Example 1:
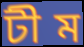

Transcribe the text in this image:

টীম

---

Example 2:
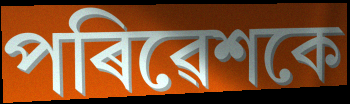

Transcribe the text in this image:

পৰিৱেশকে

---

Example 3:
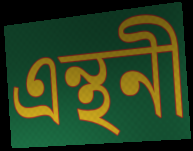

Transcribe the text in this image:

এন্থনী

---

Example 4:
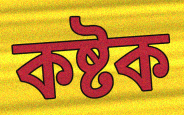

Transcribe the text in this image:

কষ্টক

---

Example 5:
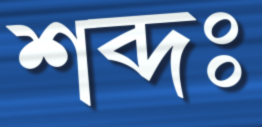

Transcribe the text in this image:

শব্দঃ